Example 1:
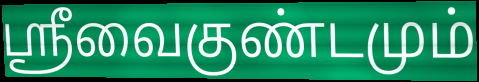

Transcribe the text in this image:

ஸ்ரீவைகுண்டமும்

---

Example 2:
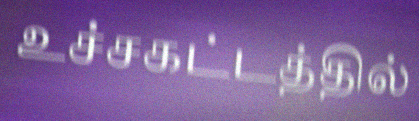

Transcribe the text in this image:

உச்சகட்டத்தில்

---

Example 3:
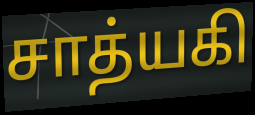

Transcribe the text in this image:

சாத்யகி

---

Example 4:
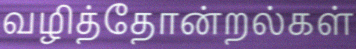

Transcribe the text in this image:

வழித்தோன்றல்கள்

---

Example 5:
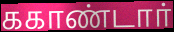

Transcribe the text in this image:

ககாண்டார்